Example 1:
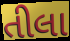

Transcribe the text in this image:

તીલા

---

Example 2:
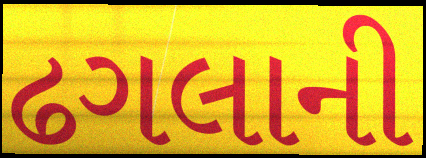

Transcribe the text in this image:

ઢગલાની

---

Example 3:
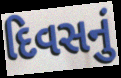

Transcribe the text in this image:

દિવસનું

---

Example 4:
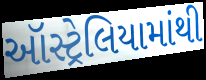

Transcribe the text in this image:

ઑસ્ટ્રેલિયામાંથી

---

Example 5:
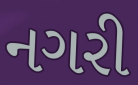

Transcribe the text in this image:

નગરી